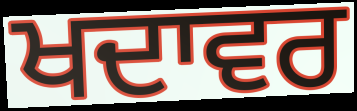
ਖਦਾਵਰ